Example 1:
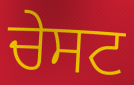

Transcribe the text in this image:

ਚੇਸਟ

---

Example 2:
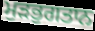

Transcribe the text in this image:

ਮੁੜਭੁਗਤਾਨ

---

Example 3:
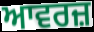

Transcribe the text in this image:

ਆਵਰਜ਼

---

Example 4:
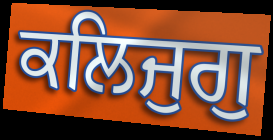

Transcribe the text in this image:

ਕਲਿਜੁਗੁ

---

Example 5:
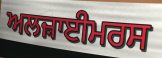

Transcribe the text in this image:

ਅਲਜ਼ਾਈਮਰਸ